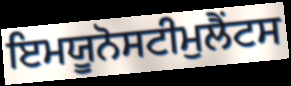
ਇਮਯੂਨੋਸਟੀਮੁਲੈਂਟਸ